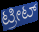
ಟ್ರೀಟ್